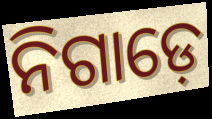
ନିଗାଡ଼େ